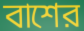
বাশের